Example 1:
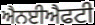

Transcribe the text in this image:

ਐਨਈਐਫਟੀ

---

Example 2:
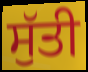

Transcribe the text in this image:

ਸੁੱਤੀ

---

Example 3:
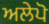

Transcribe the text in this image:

ਅਲੇਪੋ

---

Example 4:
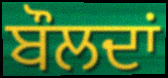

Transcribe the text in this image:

ਬੌਲਦਾਂ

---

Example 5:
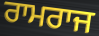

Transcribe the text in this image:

ਰਾਮਰਾਜ